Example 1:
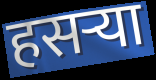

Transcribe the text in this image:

हसऱ्या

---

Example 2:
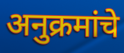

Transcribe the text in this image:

अनुक्रमांचे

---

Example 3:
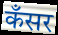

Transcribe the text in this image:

कँसर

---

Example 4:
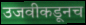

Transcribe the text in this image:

उजवीकडूनच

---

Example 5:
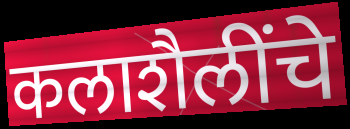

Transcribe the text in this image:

कलाशैलींचे